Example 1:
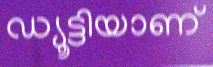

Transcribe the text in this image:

ഡ്യൂട്ടിയാണ്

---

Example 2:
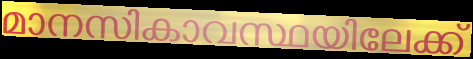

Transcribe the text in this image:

മാനസികാവസ്ഥയിലേക്ക്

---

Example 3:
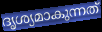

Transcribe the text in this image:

ദൃശ്യമാകുന്നത്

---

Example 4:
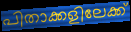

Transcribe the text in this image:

പിതാക്കളിലേക്ക്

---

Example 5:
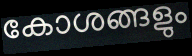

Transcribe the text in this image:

കോശങ്ങളും